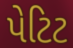
પેટિટ